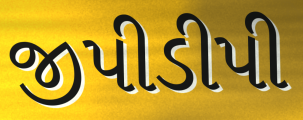
જીપીડીપી